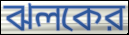
ঝলকের